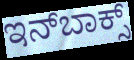
ಇನ್‍ಬಾಕ್ಸ್